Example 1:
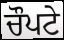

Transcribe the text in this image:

ਚੌਪਟੇ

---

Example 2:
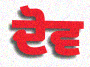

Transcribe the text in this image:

ਦੋਵ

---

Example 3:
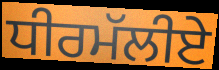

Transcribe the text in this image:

ਧੀਰਮੱਲੀਏ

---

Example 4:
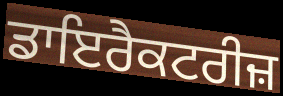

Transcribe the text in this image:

ਡਾਇਰੈਕਟਰੀਜ਼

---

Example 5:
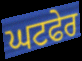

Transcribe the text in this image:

ਘਟਫੇਰ